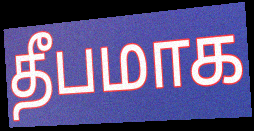
தீபமாக